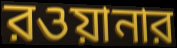
রওয়ানার